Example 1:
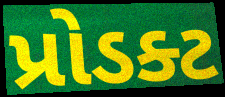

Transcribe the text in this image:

પ્રોડક્ટ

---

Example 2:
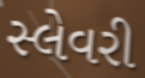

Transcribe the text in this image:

સ્લેવરી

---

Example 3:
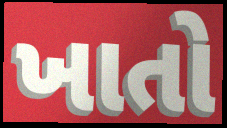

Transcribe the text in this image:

ખાતો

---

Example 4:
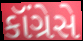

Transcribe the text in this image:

કૉંગ્રેસે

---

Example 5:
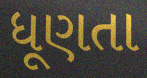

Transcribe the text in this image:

ધૂણતા